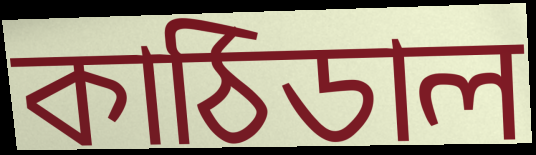
কাঠিডাল